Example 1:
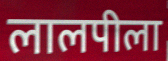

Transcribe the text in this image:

लालपीला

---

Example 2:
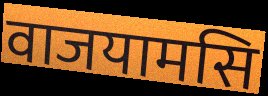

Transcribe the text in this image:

वाजयामसि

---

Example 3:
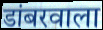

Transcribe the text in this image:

डांबरवाला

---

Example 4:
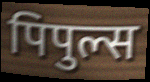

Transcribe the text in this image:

पिपुल्स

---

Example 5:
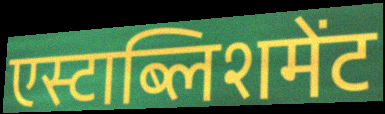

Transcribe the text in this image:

एस्टाब्लिशमेंट